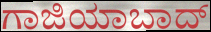
ಗಾಜಿಯಾಬಾದ್